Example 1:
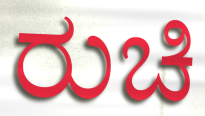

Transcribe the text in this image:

ರುಚಿ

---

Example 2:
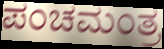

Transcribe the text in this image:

ಪಂಚಮಂತ್ರ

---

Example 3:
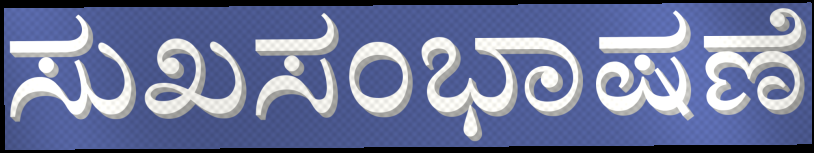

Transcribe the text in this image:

ಸುಖಸಂಭಾಷಣೆ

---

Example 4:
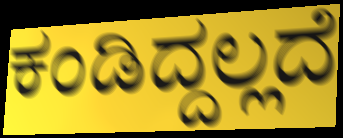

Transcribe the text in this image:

ಕಂಡಿದ್ದಲ್ಲದೆ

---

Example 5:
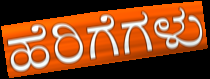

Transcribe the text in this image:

ಹೆರಿಗೆಗಳು